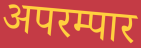
अपरम्पार